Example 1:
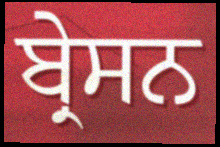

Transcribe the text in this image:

ਬ੍ਰੇਸਨ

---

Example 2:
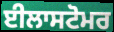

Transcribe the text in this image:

ਈਲਾਸਟੋਮਰ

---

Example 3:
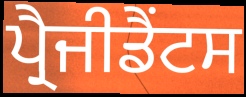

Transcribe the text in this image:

ਪ੍ਰੈਜੀਡੈਂਟਸ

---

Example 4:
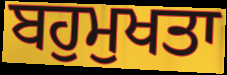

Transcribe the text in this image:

ਬਹੁਮੁਖਤਾ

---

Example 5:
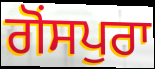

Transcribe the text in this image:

ਗੋਂਸਪੁਰਾ